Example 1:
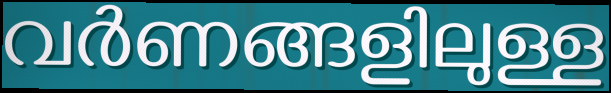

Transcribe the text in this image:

വർണങ്ങളിലുള്ള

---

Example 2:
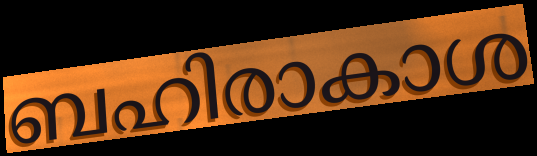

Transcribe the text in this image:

ബഹിരാകാശ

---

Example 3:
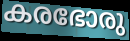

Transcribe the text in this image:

കരഭോരു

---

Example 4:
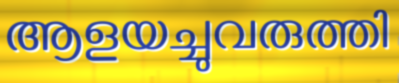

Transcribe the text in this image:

ആളയച്ചുവരുത്തി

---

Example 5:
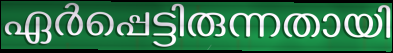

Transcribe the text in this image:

ഏർപ്പെട്ടിരുന്നതായി